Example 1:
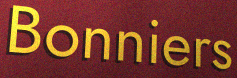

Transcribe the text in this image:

Bonniers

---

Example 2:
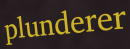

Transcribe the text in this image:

plunderer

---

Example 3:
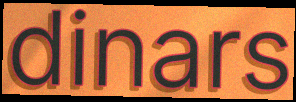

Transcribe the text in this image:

dinars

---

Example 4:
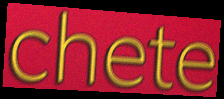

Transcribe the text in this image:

chete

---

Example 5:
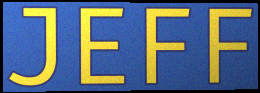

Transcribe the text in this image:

JEFF